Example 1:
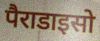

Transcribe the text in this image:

पैराडाइसो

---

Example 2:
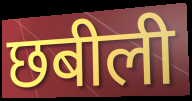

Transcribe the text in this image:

छबीली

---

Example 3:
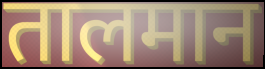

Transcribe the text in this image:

तालमान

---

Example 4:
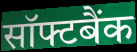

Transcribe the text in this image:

सॉफ्टबैंक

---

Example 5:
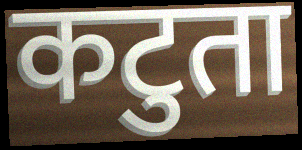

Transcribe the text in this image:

कटुता